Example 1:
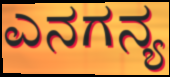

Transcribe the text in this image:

ಎನಗನ್ಯ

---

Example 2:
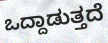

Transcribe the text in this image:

ಒದ್ದಾಡುತ್ತದೆ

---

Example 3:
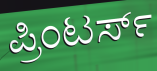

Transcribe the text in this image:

ಪ್ರಿಂಟರ್ಸ್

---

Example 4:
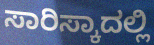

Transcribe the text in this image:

ಸಾರಿಸ್ಕಾದಲ್ಲಿ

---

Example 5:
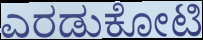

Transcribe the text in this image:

ಎರಡುಕೋಟಿ